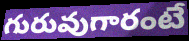
గురువుగారంటే